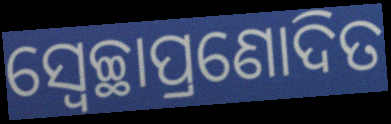
ସ୍ୱେଚ୍ଛାପ୍ରଣୋଦିତ